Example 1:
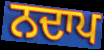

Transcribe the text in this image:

ਨਦਾਪ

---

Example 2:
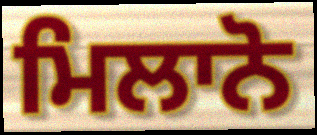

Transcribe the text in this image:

ਮਿਲਾਨੋ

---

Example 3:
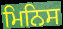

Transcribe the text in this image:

ਮਿਨਿਸ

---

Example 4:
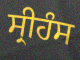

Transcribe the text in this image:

ਸ੍ਰੀਹੰਸ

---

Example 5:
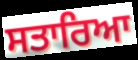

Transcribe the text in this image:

ਸਤਾਰਿਆ